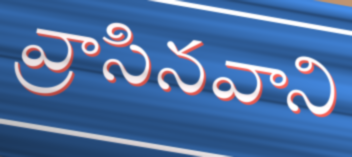
వ్రాసినవాని